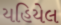
યહિયેલ